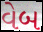
વેબ